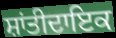
ਸ਼ਾਂਤੀਦਾਇਕ